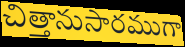
చిత్తానుసారముగా